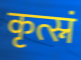
कृत्स्नं